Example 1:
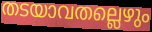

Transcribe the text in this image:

തടയാവതല്ലെഴും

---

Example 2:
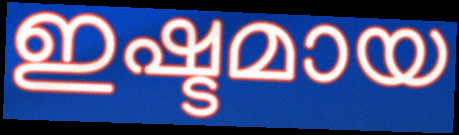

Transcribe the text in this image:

ഇഷ്ടമായ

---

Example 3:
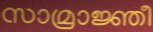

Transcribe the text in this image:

സാമ്രാജ്ഞീ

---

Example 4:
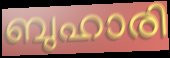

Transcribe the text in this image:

ബുഹാരി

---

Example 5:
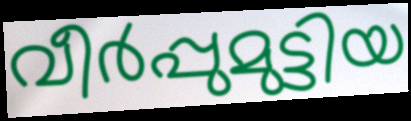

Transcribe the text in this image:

വീർപ്പുമുട്ടിയ